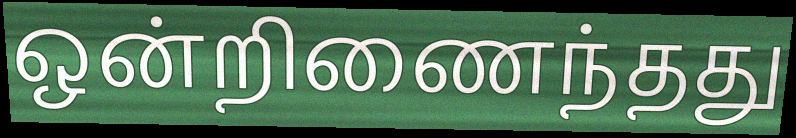
ஒன்றிணைந்தது